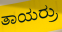
ತಾಯರ್ರು